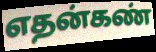
எதன்கண்